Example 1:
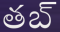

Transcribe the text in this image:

తబ్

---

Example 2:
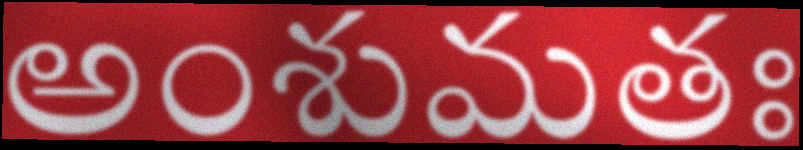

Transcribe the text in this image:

అంశుమతః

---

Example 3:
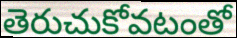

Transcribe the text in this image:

తెరుచుకోవటంతో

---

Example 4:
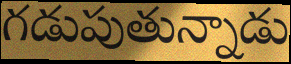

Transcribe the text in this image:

గడుపుతున్నాడు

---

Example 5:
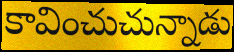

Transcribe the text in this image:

కావించుచున్నాడు